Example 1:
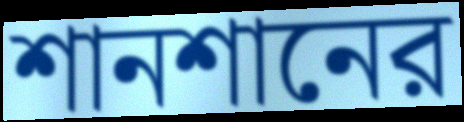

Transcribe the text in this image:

শানশানের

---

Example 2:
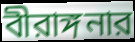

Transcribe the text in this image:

বীরাঙ্গনার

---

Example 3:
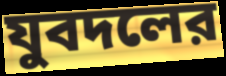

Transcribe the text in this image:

যুবদলের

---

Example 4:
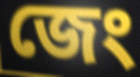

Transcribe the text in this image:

জেং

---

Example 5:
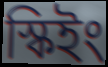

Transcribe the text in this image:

স্কিইং